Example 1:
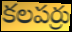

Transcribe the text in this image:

కలపర్రు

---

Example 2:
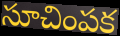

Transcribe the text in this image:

సూచింపక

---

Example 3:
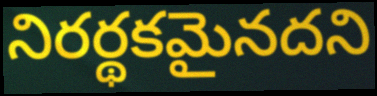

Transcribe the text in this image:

నిరర్థకమైనదని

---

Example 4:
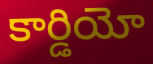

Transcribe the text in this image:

కార్డియో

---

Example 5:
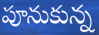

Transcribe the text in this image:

పూనుకున్న